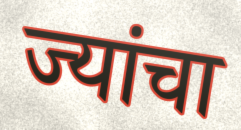
ज्यांचा